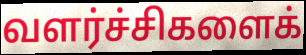
வளர்ச்சிகளைக்